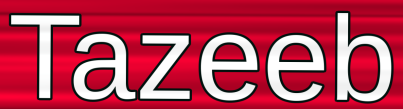
Tazeeb